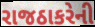
રાજઠાકરેની